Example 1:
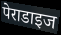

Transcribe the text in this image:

पेराडाइज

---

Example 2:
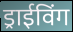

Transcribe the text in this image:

ड्राईविंग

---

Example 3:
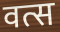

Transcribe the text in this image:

वत्स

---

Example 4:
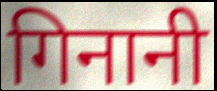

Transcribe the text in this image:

गिनानी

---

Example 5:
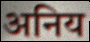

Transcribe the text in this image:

अनिय